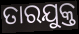
ତାରଯୁକ୍ତ